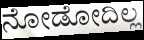
ನೋಡೋದಿಲ್ಲ